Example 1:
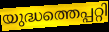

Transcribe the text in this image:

യുദ്ധത്തെപ്പറ്റി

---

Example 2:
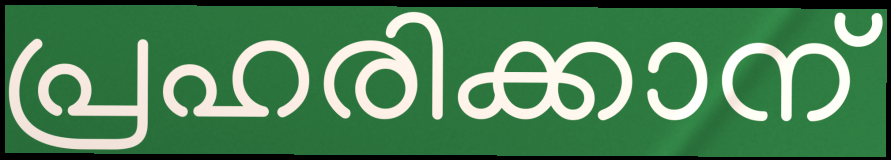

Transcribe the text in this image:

പ്രഹരിക്കാന്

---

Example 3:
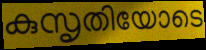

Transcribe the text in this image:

കുസൃതിയോടെ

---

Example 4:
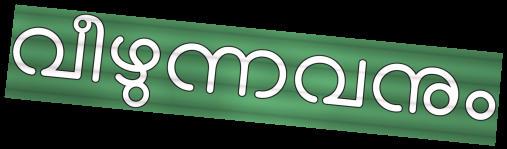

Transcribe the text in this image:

വീഴുന്നവനും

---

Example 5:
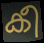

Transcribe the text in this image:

കീ